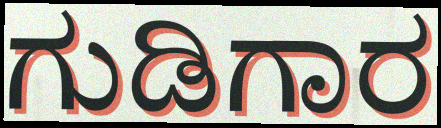
ಗುಡಿಗಾರ